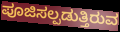
ಪೂಜಿಸಲ್ಪಡುತ್ತಿರುವ